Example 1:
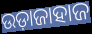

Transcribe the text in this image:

ଉଡ଼ାଜାହାଜ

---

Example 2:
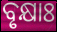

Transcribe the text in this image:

ବୃକ୍ଷାଃ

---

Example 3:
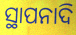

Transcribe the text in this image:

ସ୍ଥାପନାଦି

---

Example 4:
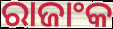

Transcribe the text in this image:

ରାଜାଂକ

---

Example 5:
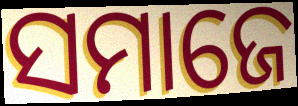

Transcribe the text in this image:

ସମାଜେ